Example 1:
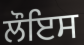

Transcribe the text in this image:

ਲੌਇਸ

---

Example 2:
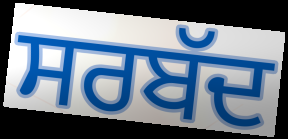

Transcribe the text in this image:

ਸਰਬੱਦ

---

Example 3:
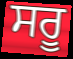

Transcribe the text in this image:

ਸਰੂ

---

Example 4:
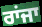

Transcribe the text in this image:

ਰਾਂਜਾ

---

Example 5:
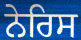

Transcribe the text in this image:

ਨੇਰਿਸ